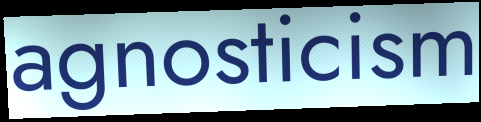
agnosticism